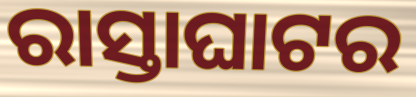
ରାସ୍ତାଘାଟର